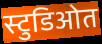
स्टुडिओत